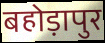
बहोड़ापुर